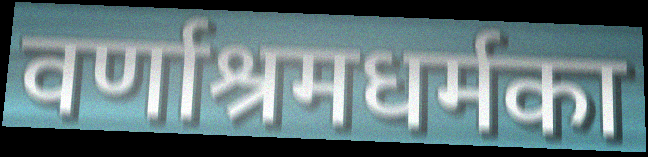
वर्णाश्रमधर्मका